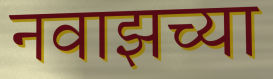
नवाझच्या